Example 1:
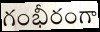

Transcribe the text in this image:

గంభీరంగా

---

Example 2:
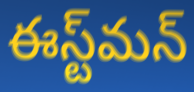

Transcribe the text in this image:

ఈస్ట్‌మన్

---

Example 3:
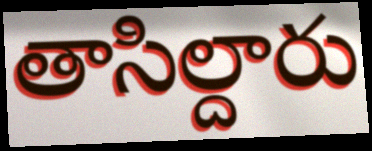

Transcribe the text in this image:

తాసిల్దారు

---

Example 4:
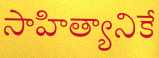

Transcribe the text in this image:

సాహిత్యానికే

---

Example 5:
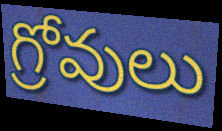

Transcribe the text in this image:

గ్రోవులు